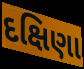
દક્ષિણા